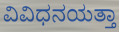
ವಿವಿಧನಯತ್ತಾ